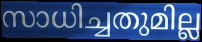
സാധിച്ചതുമില്ല